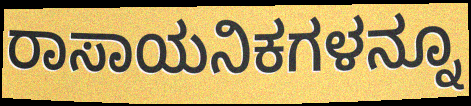
ರಾಸಾಯನಿಕಗಳನ್ನೂ